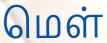
மெள்